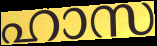
ഹാസ